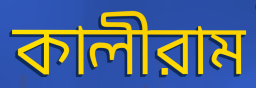
কালীরাম